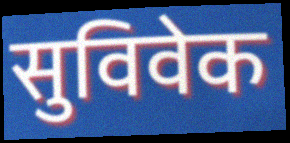
सुविवेक